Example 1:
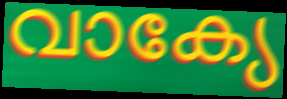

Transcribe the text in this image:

വാക്യേ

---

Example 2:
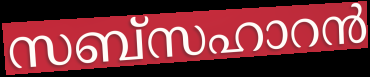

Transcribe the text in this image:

സബ്സഹാറൻ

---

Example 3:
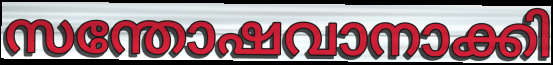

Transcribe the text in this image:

സന്തോഷവാനാക്കി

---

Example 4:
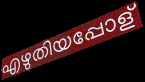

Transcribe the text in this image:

എഴുതിയപ്പോള്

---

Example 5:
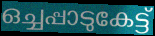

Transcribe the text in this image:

ഒച്ചപ്പാടുകേട്ട്